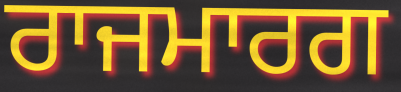
ਰਾਜਮਾਰਗ